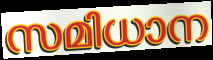
സമിധാന